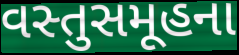
વસ્તુસમૂહના